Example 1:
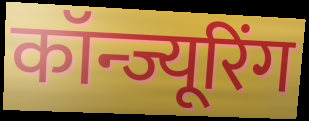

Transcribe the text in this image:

कॉन्ज्यूरिंग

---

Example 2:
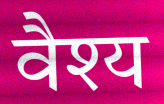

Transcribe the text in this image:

वैश्य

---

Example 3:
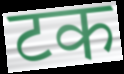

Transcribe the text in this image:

टक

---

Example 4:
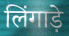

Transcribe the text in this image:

लिंगाड़े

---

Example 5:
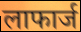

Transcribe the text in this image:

लाफार्ज